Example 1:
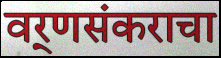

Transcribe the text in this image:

वर्णसंकराचा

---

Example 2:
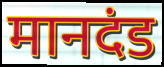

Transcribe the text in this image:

मानदंड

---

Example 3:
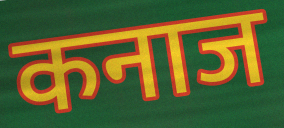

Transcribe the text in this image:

कनाज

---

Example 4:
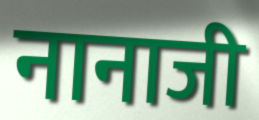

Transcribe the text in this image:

नानाजी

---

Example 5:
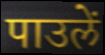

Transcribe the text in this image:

पाउलें